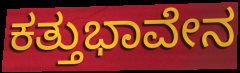
ಕತ್ತುಭಾವೇನ